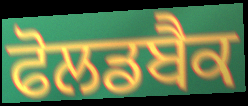
ਫੋਲਡਬੈਕ